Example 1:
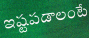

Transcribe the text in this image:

ఇష్టపడాలంటే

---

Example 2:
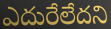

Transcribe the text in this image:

ఎదురేలేదని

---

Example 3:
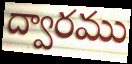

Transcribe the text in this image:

ద్వారము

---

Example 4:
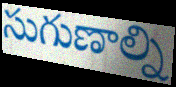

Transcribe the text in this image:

సుగుణాల్ని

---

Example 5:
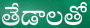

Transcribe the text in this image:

తేడాలతో